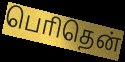
பெரிதென்